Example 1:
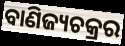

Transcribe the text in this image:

ବାଣିଜ୍ୟଚକ୍ରର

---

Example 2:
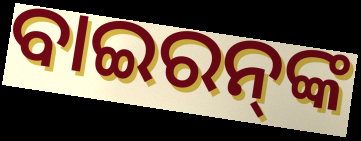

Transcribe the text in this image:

ବାଇରନ୍‌ଙ୍କ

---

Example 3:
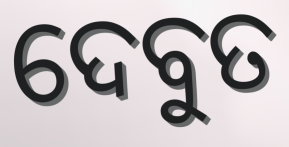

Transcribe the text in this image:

ଦେବୁତ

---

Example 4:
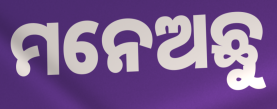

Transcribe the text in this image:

ମନେଅଛୁ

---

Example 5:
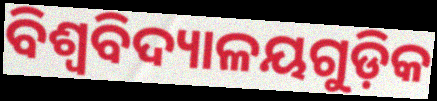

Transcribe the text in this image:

ବିଶ୍ଵବିଦ୍ୟାଳୟଗୁଡ଼ିକ